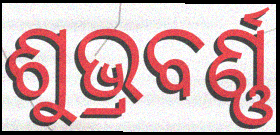
ଶୁଭ୍ରବର୍ଣ୍ଣ